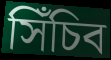
সিঁচিব